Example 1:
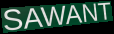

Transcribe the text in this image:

SAWANT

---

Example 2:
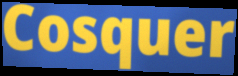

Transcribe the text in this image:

Cosquer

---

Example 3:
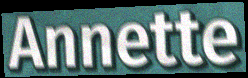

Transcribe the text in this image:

Annette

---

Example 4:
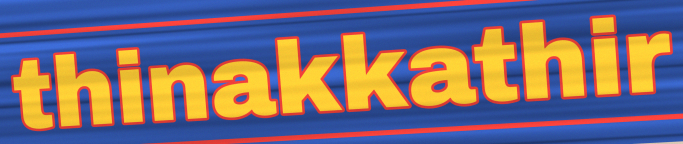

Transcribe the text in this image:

thinakkathir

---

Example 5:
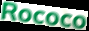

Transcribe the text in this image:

Rococo